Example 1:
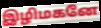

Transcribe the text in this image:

இழிமகனே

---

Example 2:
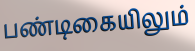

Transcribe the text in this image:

பண்டிகையிலும்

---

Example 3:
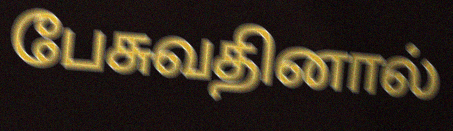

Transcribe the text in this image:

பேசுவதினால்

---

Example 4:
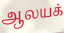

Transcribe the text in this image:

ஆலயக்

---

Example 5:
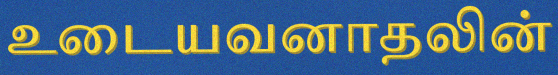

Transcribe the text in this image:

உடையவனாதலின்